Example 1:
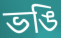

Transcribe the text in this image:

ভঙি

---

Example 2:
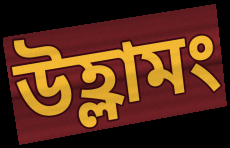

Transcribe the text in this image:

উহ্লামং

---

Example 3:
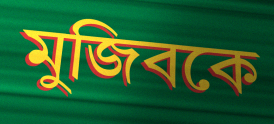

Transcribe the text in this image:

মুজিবকে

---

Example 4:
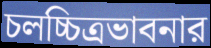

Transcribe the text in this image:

চলচ্চিত্রভাবনার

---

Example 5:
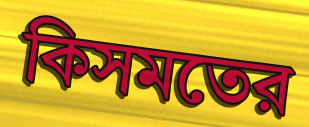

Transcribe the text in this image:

কিসমতের